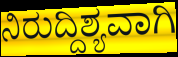
ನಿರುದ್ದಿಶ್ಯವಾಗಿ